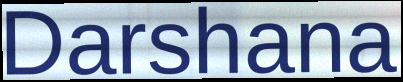
Darshana